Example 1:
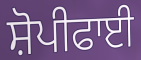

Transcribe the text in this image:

ਸ਼ੋਪੀਫਾਈ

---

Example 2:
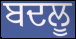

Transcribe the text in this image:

ਬਦਲੂ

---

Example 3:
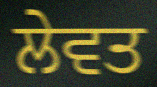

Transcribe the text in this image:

ਲੇਵਤ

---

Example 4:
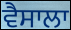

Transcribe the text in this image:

ਵੈਸਾਲਾ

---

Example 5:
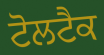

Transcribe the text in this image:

ਟੋਲਟੈਕ